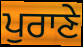
ਪੁਰਾਣੇ